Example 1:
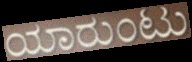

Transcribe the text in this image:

ಯಾರುಂಟು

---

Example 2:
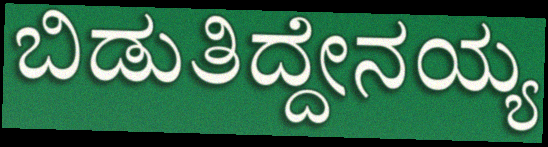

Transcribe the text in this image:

ಬಿಡುತಿದ್ದೇನಯ್ಯ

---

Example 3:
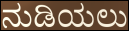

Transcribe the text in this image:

ನುಡಿಯಲು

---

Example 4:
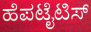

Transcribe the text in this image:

ಹೆಪಟೈಟಿಸ್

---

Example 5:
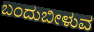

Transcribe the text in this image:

ಬಂದುಬೀಳುವ